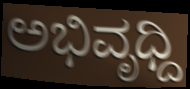
ಅಭಿವೃಧ್ದಿ